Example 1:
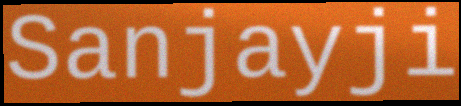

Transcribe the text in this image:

Sanjayji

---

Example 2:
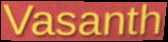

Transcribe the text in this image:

Vasanth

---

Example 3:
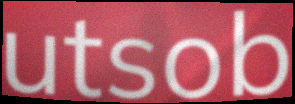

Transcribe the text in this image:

utsob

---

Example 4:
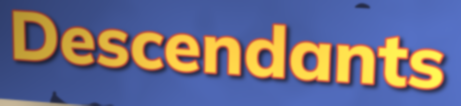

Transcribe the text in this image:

Descendants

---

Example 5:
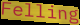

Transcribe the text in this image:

Felling